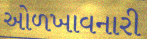
ઓળખાવનારી